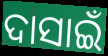
ଦାସାଇଁ